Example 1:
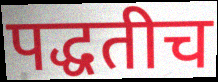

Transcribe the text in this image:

पद्धतीच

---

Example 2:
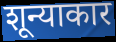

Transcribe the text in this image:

शून्याकार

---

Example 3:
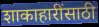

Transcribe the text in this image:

शाकाहारींसाठी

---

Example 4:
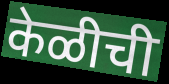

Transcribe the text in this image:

केळीची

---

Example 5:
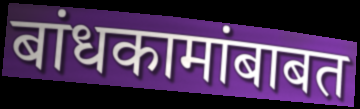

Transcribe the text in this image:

बांधकामांबाबत